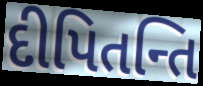
દીપિતન્તિ